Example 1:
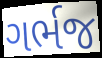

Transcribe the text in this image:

ગર્ભજ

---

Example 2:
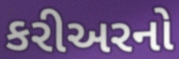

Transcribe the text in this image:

કરીઅરનો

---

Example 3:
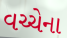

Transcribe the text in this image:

વચ્ચેના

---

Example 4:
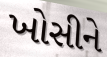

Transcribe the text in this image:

ખોસીને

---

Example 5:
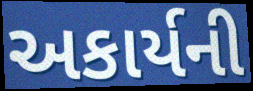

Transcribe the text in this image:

અકાર્યની